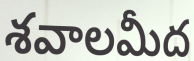
శవాలమీద